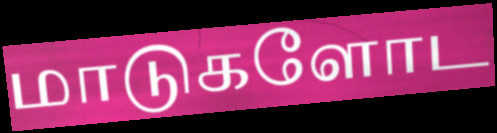
மாடுகளோட